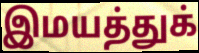
இமயத்துக்